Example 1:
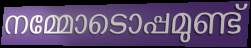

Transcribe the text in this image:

നമ്മോടൊപ്പമുണ്ട്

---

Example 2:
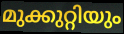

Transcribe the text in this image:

മുക്കുറ്റിയും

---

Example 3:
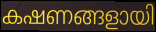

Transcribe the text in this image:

കഷണങ്ങളായി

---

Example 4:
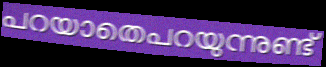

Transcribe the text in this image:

പറയാതെപറയുന്നുണ്ട്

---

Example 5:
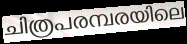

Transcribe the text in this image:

ചിത്രപരമ്പരയിലെ